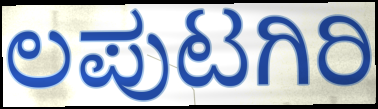
ಲಪುಟಗಿರಿ